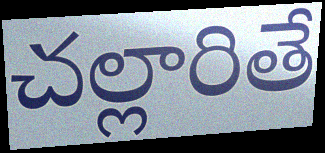
చల్లారితే